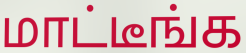
மாட்டீங்க